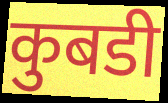
कुबडी